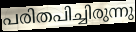
പരിതപിച്ചിരുന്നു